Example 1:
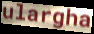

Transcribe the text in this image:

ulargha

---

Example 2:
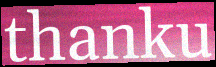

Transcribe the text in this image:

thanku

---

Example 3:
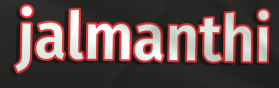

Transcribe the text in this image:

jalmanthi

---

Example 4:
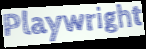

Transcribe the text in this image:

Playwright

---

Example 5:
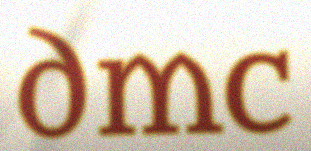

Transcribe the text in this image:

dmc